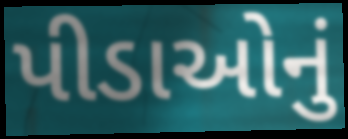
પીડાઓનું